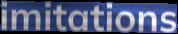
imitations